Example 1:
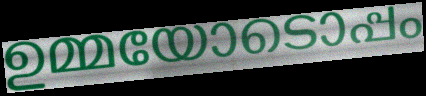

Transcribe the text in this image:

ഉമ്മയോടൊപ്പം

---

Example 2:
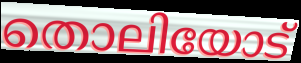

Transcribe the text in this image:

തൊലിയോട്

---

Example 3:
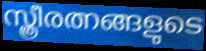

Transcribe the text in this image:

സ്ത്രീരത്നങ്ങളുടെ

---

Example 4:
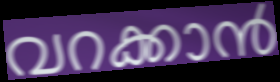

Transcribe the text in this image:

വറക്കാൻ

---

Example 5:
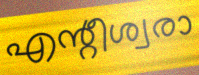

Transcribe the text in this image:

എന്റീശ്വരാ